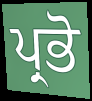
ਪ੍ਰਭੋ